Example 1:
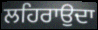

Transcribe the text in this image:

ਲਹਿਰਾਉਦਾ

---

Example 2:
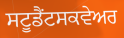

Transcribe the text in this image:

ਸਟੂਡੈਂਟਸਕਵੇਅਰ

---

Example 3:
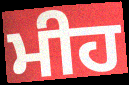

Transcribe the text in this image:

ਮੀਹ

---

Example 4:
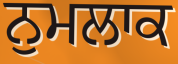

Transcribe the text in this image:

ਨੁਮਲਾਕ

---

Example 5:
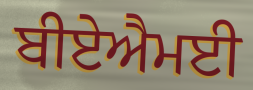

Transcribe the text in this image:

ਬੀਏਐਮਈ